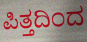
ಪಿತ್ತದಿಂದ